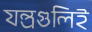
যন্ত্রগুলিই